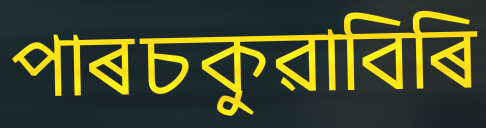
পাৰচকুৱাবিৰি